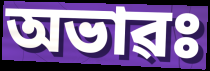
অভাৱঃ